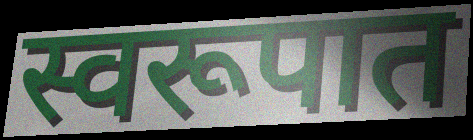
स्वरूपात